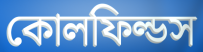
কোলফিল্ডস